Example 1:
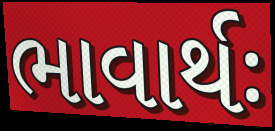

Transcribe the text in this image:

ભાવાર્થઃ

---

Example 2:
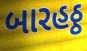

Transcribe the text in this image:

બારહઠ્ઠ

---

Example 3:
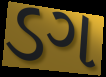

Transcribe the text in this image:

ડગ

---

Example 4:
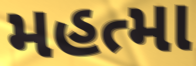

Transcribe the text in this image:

મહત્મા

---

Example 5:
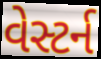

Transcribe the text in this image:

વેસ્ટર્ન